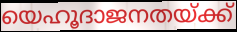
യെഹൂദാജനതയ്ക്ക്